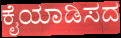
ಕೈಯಾಡಿಸದ